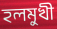
হলমুখী